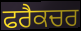
ਫਰੈਕਚਰ